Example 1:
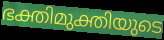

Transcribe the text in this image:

ഭക്തിമുക്തിയുടെ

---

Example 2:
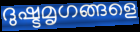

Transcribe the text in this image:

ദുഷ്ടമൃഗങ്ങളെ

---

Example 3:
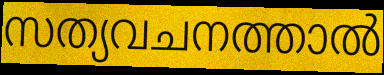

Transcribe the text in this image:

സത്യവചനത്താൽ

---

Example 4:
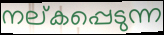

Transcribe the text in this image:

നല്കപ്പെടുന്ന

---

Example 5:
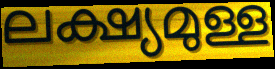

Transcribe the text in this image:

ലക്ഷ്യമുള്ള